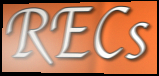
RECs